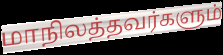
மாநிலத்தவர்களும்